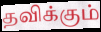
தவிக்கும்